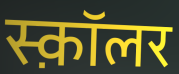
स्क़ॉलर